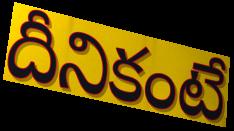
దీనికంటే